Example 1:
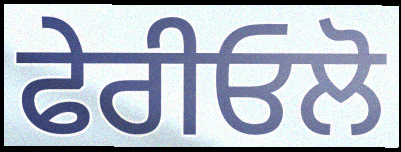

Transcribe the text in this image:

ਫੇਰੀਓਲੋ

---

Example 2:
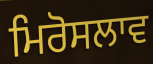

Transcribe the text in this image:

ਮਿਰੋਸਲਾਵ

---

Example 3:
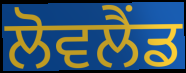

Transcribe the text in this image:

ਲੋਵਲੈਂਡ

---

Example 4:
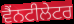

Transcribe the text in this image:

ਵੈਂਨਟੀਲੇਟਰ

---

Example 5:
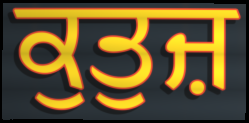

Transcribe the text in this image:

ਕੁਤੁਜ਼